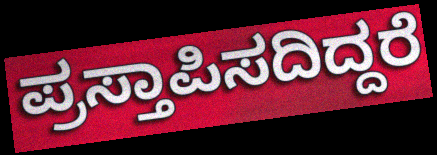
ಪ್ರಸ್ತಾಪಿಸದಿದ್ದರೆ